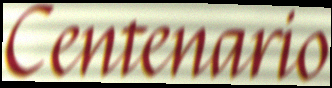
Centenario